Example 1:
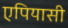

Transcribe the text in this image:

एपियासी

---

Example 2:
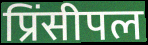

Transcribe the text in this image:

प्रिंसीपल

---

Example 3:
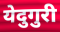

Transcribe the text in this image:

येदुगुरी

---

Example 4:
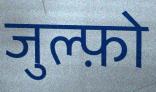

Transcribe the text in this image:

जुल्फ़ो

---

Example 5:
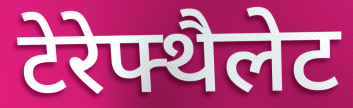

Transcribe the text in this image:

टेरेफ्थैलेट